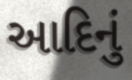
આદિનું